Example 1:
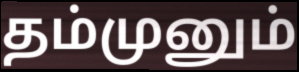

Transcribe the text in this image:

தம்முனும்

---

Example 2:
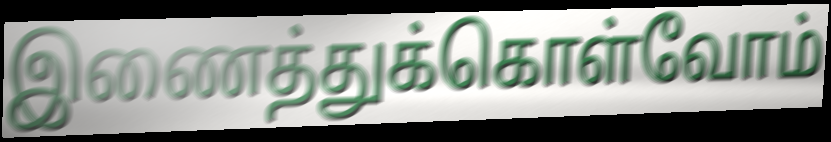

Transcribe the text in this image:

இணைத்துக்கொள்வோம்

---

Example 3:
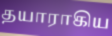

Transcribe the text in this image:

தயாராகிய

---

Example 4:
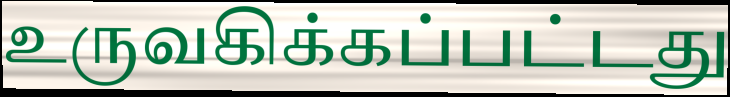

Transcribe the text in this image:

உருவகிக்கப்பட்டது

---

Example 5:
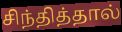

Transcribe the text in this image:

சிந்தித்தால்